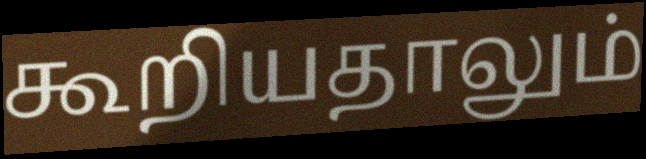
கூறியதாலும்